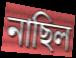
নাছিল